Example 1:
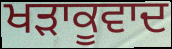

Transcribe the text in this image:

ਖੜਾਕੂਵਾਦ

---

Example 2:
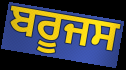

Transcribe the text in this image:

ਬਰੂਜਸ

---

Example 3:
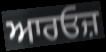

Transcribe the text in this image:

ਆਰਓਜ਼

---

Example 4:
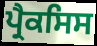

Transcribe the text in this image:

ਪ੍ਰੈਕਸਿਸ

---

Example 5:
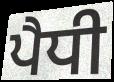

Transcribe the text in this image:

ਪੈਧੀ